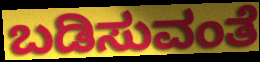
ಬಡಿಸುವಂತೆ